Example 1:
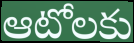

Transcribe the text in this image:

ఆటోలకు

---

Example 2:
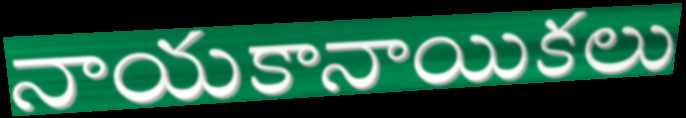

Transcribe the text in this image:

నాయకానాయికలు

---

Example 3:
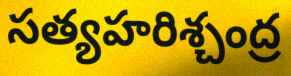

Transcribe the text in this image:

సత్యహరిశ్చంద్ర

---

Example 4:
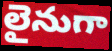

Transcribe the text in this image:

లైనుగా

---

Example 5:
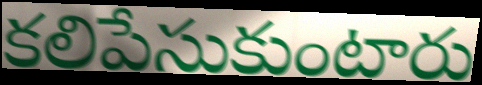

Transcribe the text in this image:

కలిపేసుకుంటారు